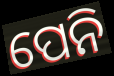
ପେନି